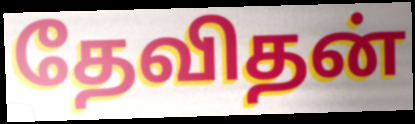
தேவிதன்